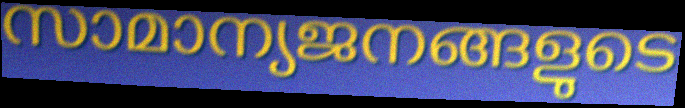
സാമാന്യജനങ്ങളുടെ